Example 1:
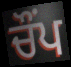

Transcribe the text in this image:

ਚੌਂਪ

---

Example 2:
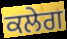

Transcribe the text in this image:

ਕਲੇਗ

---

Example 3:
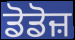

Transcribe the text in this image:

ਡੋਡੋਜ਼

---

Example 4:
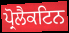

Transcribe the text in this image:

ਪ੍ਰੋਲੈਕਟਿਨ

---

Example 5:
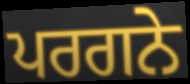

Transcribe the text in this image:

ਪਰਗਨੇ